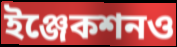
ইঞ্জেকশনও